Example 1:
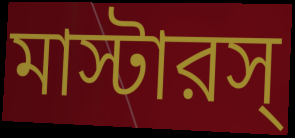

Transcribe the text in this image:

মাস্টারস্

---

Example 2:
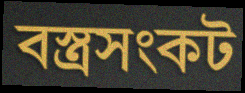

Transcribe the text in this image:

বস্ত্রসংকট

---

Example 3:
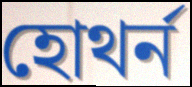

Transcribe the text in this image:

হোথর্ন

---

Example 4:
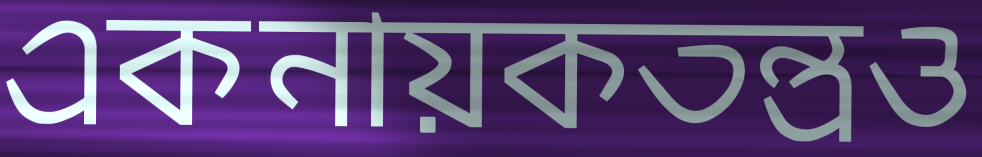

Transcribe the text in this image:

একনায়কতন্ত্রও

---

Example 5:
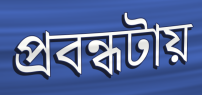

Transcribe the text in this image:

প্রবন্ধটায়